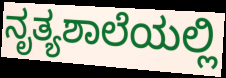
ನೃತ್ಯಶಾಲೆಯಲ್ಲಿ